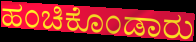
ಹಂಚಿಕೊಂಡಾರು